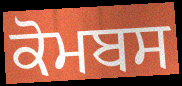
ਕੋਮਬਸ